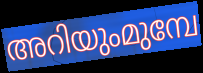
അറിയുംമുമ്പേ